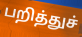
பறித்துச்